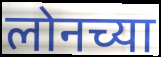
लोनच्या